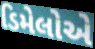
ડિમેલોએ